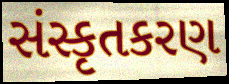
સંસ્કૃતકરણ